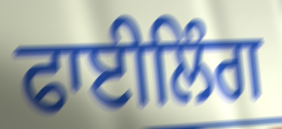
ਫਾਈਲਿੰਗ